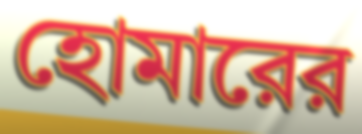
হোমারের